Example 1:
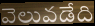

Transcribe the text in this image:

వెలువడేది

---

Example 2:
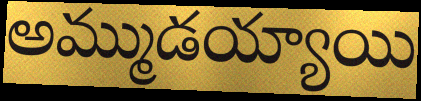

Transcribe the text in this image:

అమ్ముడయ్యాయి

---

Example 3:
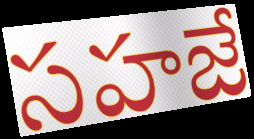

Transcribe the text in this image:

సహజే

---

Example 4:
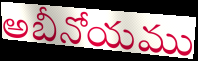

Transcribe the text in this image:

అబీనోయము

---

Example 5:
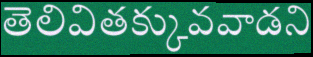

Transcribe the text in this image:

తెలివితక్కువవాడని